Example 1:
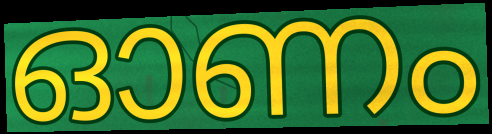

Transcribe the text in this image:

ഓണം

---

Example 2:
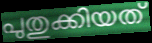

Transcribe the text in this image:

പുതുക്കിയത്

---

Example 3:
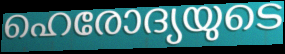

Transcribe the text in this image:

ഹെരോദ്യയുടെ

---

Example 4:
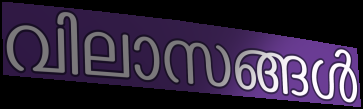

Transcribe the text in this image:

വിലാസങ്ങൾ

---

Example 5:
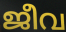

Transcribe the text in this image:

ജീവ